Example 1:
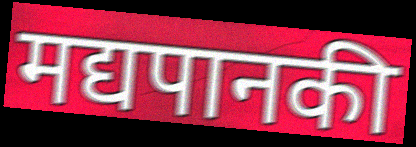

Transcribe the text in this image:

मद्यपानकी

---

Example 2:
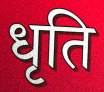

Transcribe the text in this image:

धृति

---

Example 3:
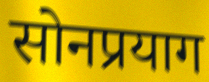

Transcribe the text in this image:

सोनप्रयाग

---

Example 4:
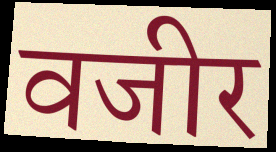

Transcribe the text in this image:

वजीर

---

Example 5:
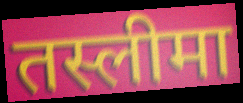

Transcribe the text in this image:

तस्लीमा